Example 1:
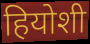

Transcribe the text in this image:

हियोशी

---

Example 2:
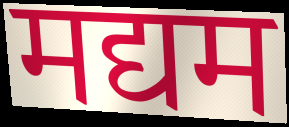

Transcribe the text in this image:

मद्यम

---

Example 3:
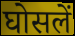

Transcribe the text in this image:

घोसलें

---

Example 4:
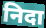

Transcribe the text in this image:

निदा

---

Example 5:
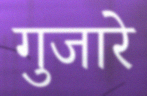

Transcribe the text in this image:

गुजारे